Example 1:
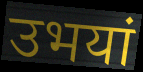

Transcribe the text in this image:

उभयां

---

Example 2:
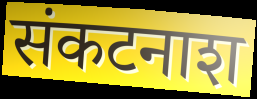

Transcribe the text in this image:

संकटनाश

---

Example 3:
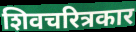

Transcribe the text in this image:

शिवचरित्रकार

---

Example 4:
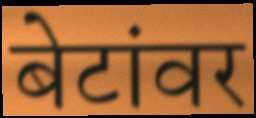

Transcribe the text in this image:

बेटांवर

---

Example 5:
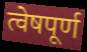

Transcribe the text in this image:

त्वेषपूर्ण